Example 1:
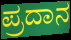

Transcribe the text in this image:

ಪ್ರದಾನ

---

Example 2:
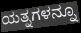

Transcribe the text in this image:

ಯತ್ನಗಳನ್ನೂ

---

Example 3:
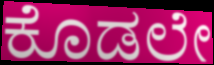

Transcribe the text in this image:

ಕೊಡಲೇ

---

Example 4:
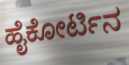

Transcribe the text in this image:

ಹೈಕೋರ್ಟಿನ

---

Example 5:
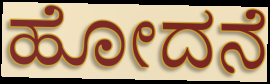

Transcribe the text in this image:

ಹೋದನೆ